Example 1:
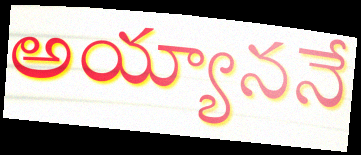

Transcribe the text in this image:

అయ్యాననే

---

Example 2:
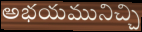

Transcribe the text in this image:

అభయమునిచ్చి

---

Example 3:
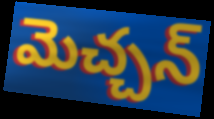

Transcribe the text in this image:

మెచ్చన్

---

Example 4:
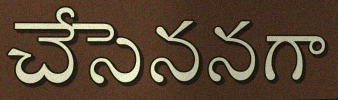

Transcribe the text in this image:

చేసెననగా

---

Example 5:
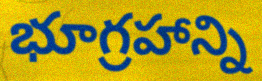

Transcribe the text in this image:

భూగ్రహాన్ని